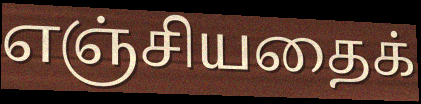
எஞ்சியதைக்